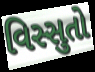
વિસ્સુતો